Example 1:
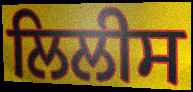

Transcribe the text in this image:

ਲਿਲੀਸ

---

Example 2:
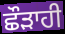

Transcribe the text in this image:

ਛੌੜਾਹੀ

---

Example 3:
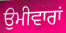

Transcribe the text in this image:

ਉਮੀਵਾਰਾਂ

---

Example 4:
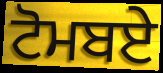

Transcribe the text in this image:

ਟੋਮਬਏ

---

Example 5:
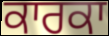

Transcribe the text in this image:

ਕਾਰਕਾ